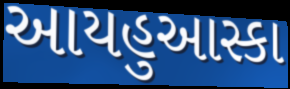
આયહુઆસ્કા